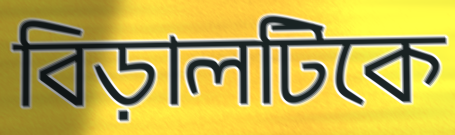
বিড়ালটিকে